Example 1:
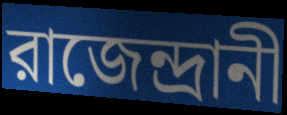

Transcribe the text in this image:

রাজেন্দ্রানী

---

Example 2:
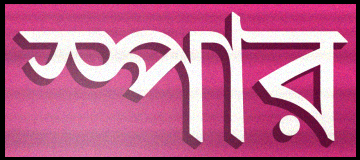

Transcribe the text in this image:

স্পার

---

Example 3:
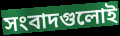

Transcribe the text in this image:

সংবাদগুলোই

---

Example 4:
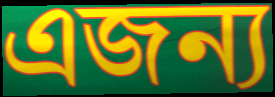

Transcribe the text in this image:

এজন্য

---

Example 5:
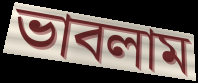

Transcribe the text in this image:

ভাবলাম